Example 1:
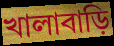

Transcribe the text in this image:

খালাবাড়ি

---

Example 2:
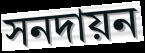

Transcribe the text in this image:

সনদায়ন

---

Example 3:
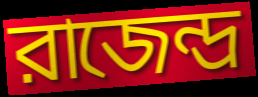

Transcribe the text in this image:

রাজেন্দ্র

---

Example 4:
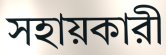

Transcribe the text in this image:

সহায়কারী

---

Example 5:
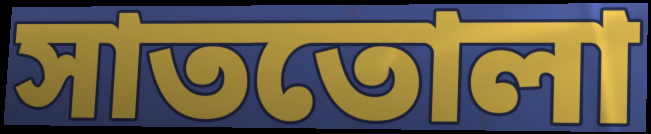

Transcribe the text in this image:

সাততোলা